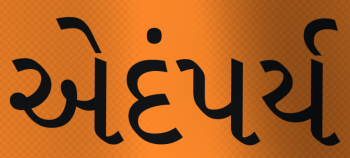
એદંપર્ય